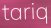
tariq